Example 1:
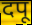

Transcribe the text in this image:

दपू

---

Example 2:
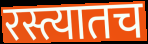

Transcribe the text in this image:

रस्त्यातच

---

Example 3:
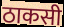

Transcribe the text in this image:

ठाकसी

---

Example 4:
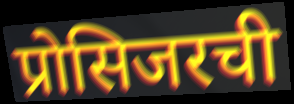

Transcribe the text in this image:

प्रोसिजरची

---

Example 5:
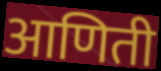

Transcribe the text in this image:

आणिती